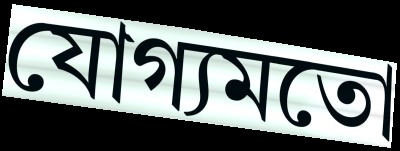
যোগ্যমতো